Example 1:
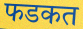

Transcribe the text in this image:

फडकत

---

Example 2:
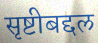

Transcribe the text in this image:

सृष्टीबद्दल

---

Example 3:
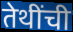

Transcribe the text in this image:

तेथींची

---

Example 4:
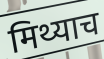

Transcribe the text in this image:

मिथ्याच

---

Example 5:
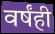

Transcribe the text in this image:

वर्षंही